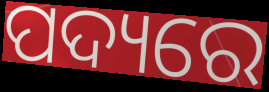
ପଦ୍ୟରେ